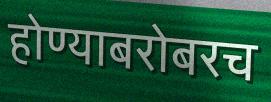
होण्याबरोबरच